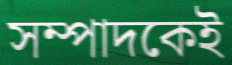
সম্পাদকেই